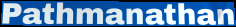
Pathmanathan